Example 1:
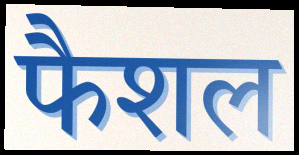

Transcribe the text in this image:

फैशल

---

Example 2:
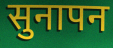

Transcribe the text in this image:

सुनापन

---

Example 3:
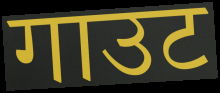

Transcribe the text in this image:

गाउट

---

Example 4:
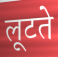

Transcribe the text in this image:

लूटते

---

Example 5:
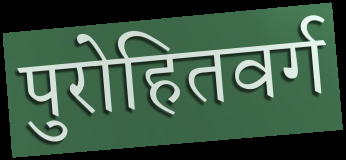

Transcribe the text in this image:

पुरोहितवर्ग